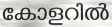
കോളറിൽ